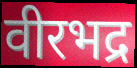
वीरभद्र